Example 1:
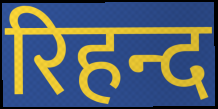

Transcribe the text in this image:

रिहन्द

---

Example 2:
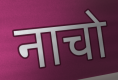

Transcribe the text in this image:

नाचो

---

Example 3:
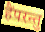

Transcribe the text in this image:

हैंपरन्तु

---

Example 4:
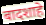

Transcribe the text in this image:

बादशाहे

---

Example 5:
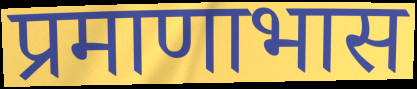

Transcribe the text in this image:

प्रमाणाभास